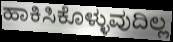
ಹಾಕಿಸಿಕೊಳ್ಳುವುದಿಲ್ಲ